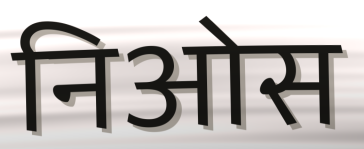
निओस